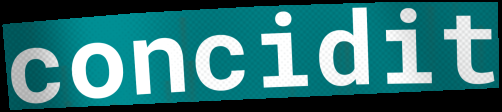
concidit